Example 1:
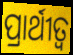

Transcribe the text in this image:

ପ୍ରାର୍ଥୀତ୍ଵ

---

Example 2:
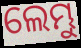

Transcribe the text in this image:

ଲେମ୍ଭୁ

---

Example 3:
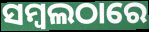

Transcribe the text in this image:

ସମ୍ବଲଠାରେ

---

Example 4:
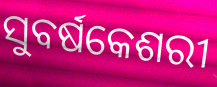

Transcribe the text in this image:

ସୁବର୍ଷକେଶରୀ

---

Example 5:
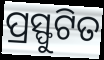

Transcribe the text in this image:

ପ୍ରସ୍ଫୁଟିତ